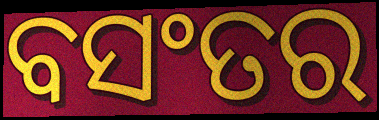
ବସଂତର